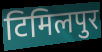
टिमिलपुर